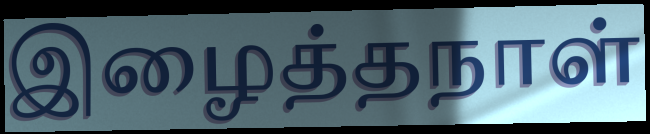
இழைத்தநாள்